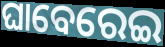
ଘାବେରେଇ